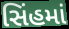
સિંહમાં